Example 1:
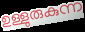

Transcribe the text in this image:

ഉള്ളുരുകുന്ന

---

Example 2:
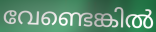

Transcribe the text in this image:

വേണ്ടെങ്കിൽ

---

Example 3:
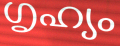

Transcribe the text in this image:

ഗൃഹ്യം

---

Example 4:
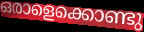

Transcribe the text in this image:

ഒരാളെക്കൊണ്ടു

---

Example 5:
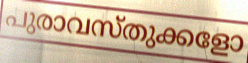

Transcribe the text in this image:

പുരാവസ്തുക്കളോ